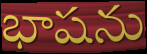
భాషను